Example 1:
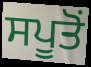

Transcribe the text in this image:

ਸਪੂਤੋਂ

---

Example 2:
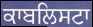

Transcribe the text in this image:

ਕਾਬਲਿਸਟਾ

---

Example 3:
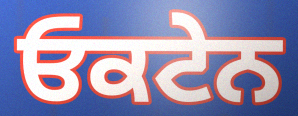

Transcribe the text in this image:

ਓਕਟੇਨ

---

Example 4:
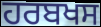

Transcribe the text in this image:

ਹਰਬਖਸ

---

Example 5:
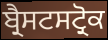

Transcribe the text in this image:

ਬ੍ਰੈਸਟਸਟ੍ਰੋਕ